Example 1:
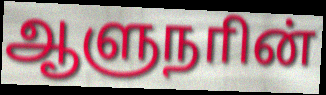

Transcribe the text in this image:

ஆளுநரின்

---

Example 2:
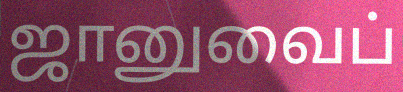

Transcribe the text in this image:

ஜானுவைப்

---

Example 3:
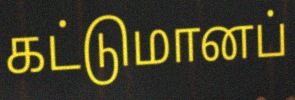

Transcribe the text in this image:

கட்டுமானப்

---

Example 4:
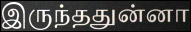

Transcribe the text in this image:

இருந்ததுன்னா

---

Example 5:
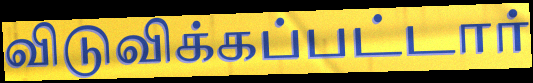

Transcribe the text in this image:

விடுவிக்கப்பட்டார்